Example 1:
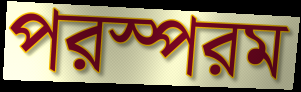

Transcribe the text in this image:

পরস্পরম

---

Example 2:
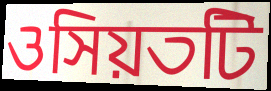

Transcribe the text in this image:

ওসিয়তটি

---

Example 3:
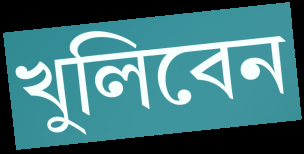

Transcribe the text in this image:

খুলিবেন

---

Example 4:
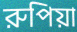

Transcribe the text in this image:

রুপিয়া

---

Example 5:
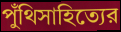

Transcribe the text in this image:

পুঁথিসাহিত্যের